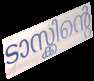
ടാസ്ക്കിന്റെ